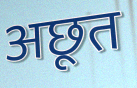
अछूत